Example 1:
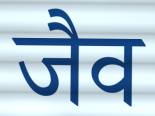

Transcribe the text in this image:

जैव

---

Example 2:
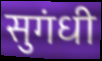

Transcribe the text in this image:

सुगंधी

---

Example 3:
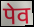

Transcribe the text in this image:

पेव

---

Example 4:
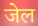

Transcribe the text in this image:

जेल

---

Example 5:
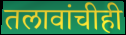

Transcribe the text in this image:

तलावांचीही